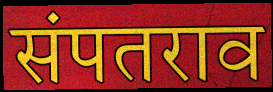
संपतराव